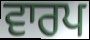
ਵਾਰਪ